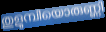
തുളുമ്പിയൊരുണ്ണി